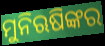
ମୁନିଋଷିଙ୍କର